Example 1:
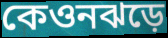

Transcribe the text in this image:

কেওনঝড়ে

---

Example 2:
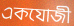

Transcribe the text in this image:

একযোজী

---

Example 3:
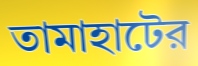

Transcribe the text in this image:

তামাহাটের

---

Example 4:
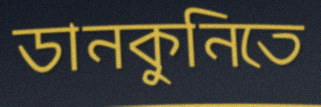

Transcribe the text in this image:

ডানকুনিতে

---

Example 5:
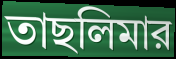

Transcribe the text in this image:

তাছলিমার